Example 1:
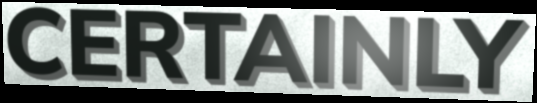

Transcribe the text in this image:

CERTAINLY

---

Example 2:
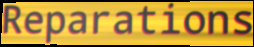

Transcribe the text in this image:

Reparations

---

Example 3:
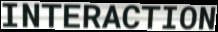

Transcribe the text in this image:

INTERACTION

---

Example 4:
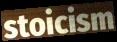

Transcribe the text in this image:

stoicism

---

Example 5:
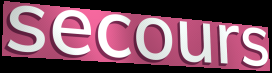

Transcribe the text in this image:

secours